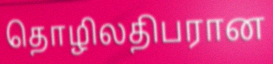
தொழிலதிபரான